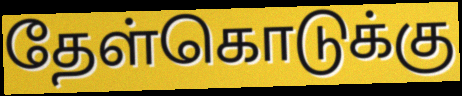
தேள்கொடுக்கு